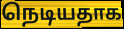
நெடியதாக